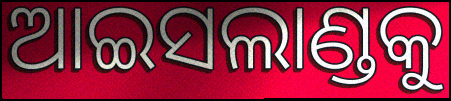
ଆଇସଲାଣ୍ଡକୁ